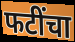
फटींचा